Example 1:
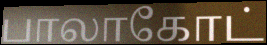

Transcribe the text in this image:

பாலாகோட்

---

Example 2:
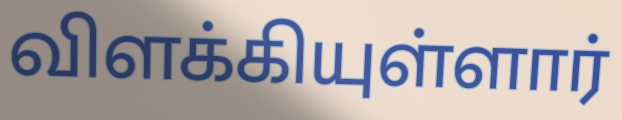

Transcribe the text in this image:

விளக்கியுள்ளார்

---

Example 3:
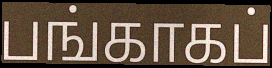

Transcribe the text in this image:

பங்காகப்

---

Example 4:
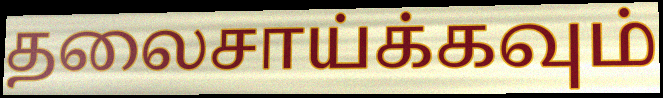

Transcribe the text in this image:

தலைசாய்க்கவும்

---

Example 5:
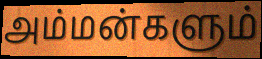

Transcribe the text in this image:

அம்மன்களும்